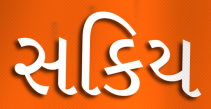
સકિય